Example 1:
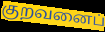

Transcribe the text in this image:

குறவனைப்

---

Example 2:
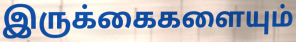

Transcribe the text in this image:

இருக்கைகளையும்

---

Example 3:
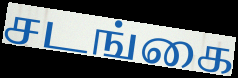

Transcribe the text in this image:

சடங்கை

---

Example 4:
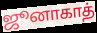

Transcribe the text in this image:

ஜூனாகாத்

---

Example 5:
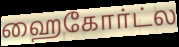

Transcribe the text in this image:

ஹைகோர்ட்ல